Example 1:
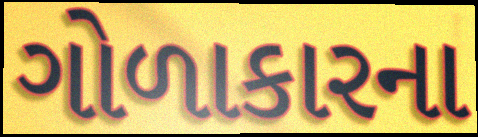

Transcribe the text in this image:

ગોળાકારના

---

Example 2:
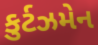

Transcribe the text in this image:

કુર્ટઝમેન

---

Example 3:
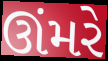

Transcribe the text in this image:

ઊંમરે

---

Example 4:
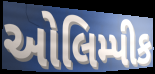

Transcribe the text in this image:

ઓલિમ્પીક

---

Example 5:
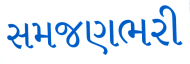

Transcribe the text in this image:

સમજણભરી